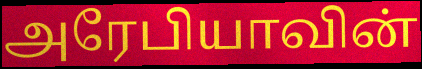
அரேபியாவின்